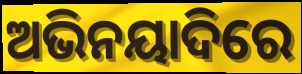
ଅଭିନୟାଦିରେ